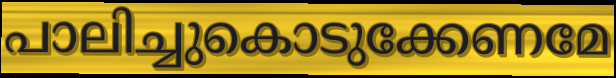
പാലിച്ചുകൊടുക്കേണമേ